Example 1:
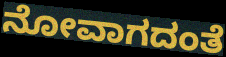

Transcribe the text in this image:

ನೋವಾಗದಂತೆ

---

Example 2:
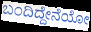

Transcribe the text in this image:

ಬಂದಿದ್ದೇನೆಯೋ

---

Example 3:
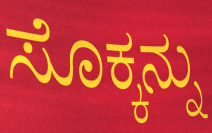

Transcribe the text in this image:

ಸೊಕ್ಕನ್ನು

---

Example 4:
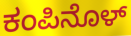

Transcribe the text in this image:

ಕಂಪಿನೊಳ್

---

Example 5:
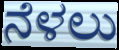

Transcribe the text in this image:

ನೆಳಲು